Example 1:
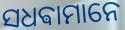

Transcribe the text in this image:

ସଧଵାମାନେ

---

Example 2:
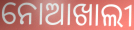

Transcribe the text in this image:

ନୋଆଖାଲୀ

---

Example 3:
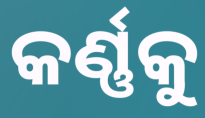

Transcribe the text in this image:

କର୍ଣ୍ଣକୁ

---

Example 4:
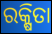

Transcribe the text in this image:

ରକ୍ଷିତା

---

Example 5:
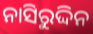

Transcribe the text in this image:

ନାସିରୁଦ୍ଦିନ